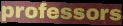
professors